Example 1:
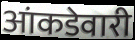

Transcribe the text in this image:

आंकडेवारी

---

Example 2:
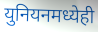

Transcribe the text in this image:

युनियनमध्येही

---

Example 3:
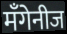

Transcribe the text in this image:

मँगेनीज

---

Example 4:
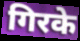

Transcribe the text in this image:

गिरके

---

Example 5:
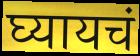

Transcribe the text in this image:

घ्यायचं